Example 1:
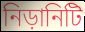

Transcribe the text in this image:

নিড়ানিটি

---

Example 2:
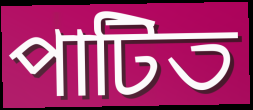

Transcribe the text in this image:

পাটিত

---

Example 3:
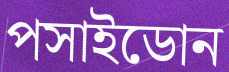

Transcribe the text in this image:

পসাইডোন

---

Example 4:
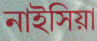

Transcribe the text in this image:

নাইসিয়া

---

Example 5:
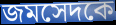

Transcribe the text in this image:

জমসেদকে